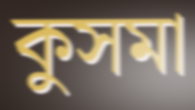
কুসমা